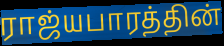
ராஜ்யபாரத்தின்